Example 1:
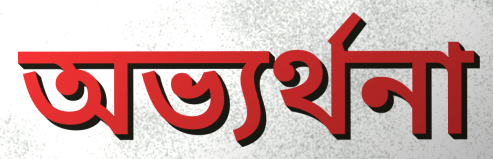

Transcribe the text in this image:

অভ্যর্থনা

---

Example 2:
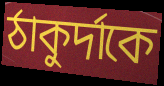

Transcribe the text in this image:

ঠাকুর্দাকে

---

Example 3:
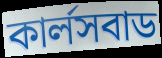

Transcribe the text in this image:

কার্লসবাড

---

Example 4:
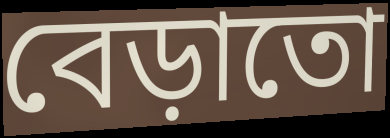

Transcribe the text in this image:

বেড়াতো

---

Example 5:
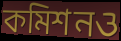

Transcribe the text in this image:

কমিশনও